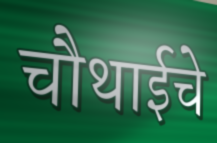
चौथाईचे